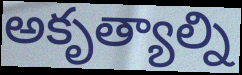
అకృత్యాల్ని